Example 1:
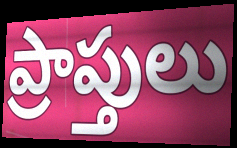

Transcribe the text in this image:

ప్రాప్తులు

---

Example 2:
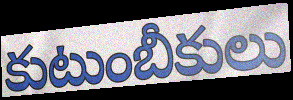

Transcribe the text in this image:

కుటుంబీకులు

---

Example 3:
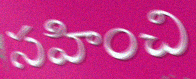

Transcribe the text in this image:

సహించి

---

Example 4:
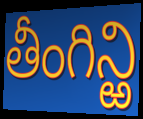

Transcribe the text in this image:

తీంగిన్ఱి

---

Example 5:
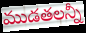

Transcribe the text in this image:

ముడతలన్నీ